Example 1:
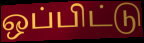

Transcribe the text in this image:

ஒப்பிட்டு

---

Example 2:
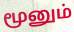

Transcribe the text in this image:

மூனும்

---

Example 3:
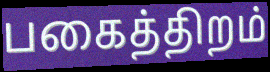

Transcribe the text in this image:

பகைத்திறம்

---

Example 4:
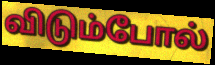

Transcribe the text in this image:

விடும்போல்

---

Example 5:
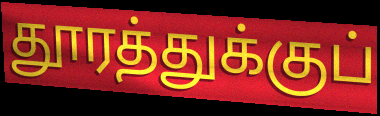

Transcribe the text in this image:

தூரத்துக்குப்